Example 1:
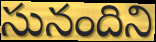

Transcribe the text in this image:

సునందిని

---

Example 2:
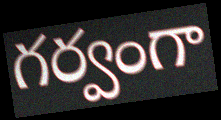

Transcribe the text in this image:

గర్వంగా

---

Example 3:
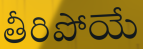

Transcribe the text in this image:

తీరిపోయే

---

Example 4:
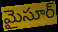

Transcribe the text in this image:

మైసూర్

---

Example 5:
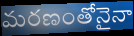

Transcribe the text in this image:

మరణంతోనైనా